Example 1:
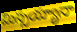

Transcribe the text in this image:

మిస్సయ్యానా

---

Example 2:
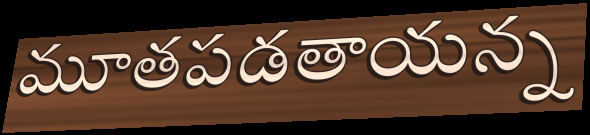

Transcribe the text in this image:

మూతపడతాయన్న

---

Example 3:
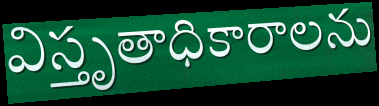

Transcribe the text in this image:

విస్తృతాధికారాలను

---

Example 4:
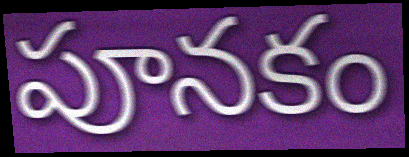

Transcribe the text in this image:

పూనకం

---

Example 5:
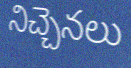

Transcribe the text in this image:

నిచ్చెనలు